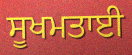
ਸੂਖਮਤਾਈ